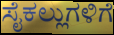
ಸೈಕಲ್ಲುಗಳಿಗೆ